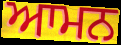
ਆਮਨ